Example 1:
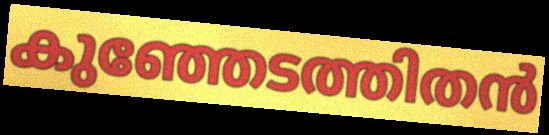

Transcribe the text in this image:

കുഞ്ഞേടത്തിതൻ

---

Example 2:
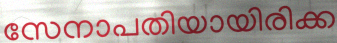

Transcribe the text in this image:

സേനാപതിയായിരിക്ക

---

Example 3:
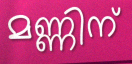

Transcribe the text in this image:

മണ്ണിന്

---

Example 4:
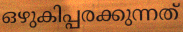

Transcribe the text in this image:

ഒഴുകിപ്പരക്കുന്നത്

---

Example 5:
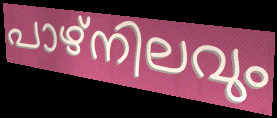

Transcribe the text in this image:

പാഴ്നിലവും